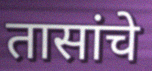
तासांचे